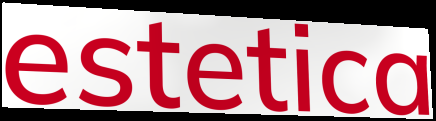
estetica